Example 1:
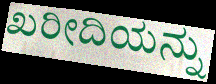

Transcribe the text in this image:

ಖರೀದಿಯನ್ನು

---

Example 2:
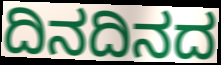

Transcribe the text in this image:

ದಿನದಿನದ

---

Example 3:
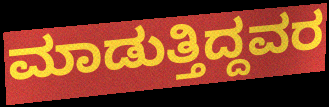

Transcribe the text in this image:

ಮಾಡುತ್ತಿದ್ದವರ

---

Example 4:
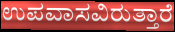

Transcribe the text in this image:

ಉಪವಾಸವಿರುತ್ತಾರೆ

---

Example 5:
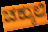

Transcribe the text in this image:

ಚಕ್ಕುಲಿ